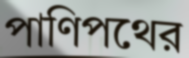
পাণিপথের